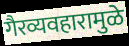
गैरव्यवहारामुळे